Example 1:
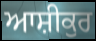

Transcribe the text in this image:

ਆਸ਼ੀਕੁਰ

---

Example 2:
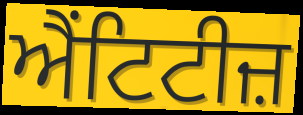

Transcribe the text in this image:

ਐਂਟਿਟੀਜ਼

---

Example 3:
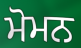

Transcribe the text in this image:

ਮੋਮਨ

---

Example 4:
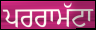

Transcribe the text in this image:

ਪਰਰਾਮੱਟਾ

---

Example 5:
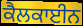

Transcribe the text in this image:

ਕੈਲਕਾਈਨ